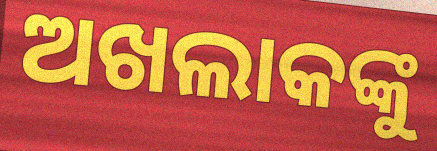
ଅଖଲାକଙ୍କୁ